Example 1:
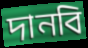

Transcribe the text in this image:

দানবি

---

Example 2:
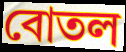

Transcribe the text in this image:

বোতল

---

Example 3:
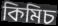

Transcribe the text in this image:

কিমিচ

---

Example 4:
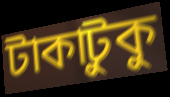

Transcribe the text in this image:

টাকাটুকু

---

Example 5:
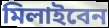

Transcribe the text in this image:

মিলাইবেন